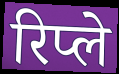
रिप्ले